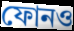
ফোনও